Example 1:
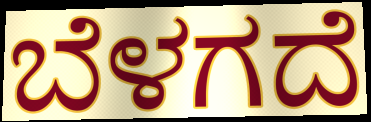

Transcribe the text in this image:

ಬೆಳಗದೆ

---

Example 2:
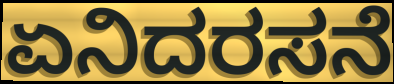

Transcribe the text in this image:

ಏನಿದರಸನೆ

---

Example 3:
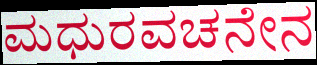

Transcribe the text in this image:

ಮಧುರವಚನೇನ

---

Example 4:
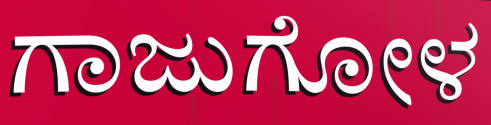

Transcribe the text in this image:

ಗಾಜುಗೋಳ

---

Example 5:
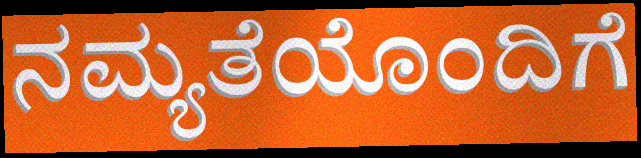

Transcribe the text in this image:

ನಮ್ಯತೆಯೊಂದಿಗೆ